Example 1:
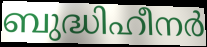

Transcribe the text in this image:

ബുദ്ധിഹീനർ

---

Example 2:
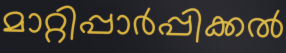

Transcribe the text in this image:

മാറ്റിപ്പാർപ്പിക്കൽ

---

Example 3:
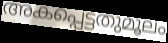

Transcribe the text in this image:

അകപ്പെട്ടതുമൂലം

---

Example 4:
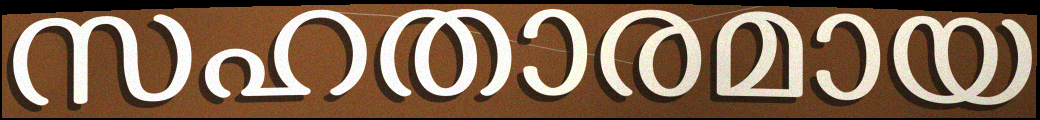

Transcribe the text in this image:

സഹതാരമായ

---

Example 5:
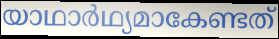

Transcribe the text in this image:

യാഥാർഥ്യമാകേണ്ടത്